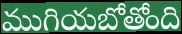
ముగియబోతోంది